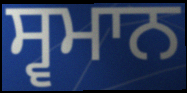
ਸ੍ਵਮਾਨ